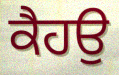
ਕੈਹਉ